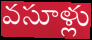
వసూళ్లు